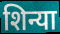
शिन्या